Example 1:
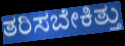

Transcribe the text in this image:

ತರಿಸಬೇಕಿತ್ತು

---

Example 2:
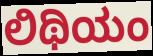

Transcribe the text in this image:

ಲಿಥಿಯಂ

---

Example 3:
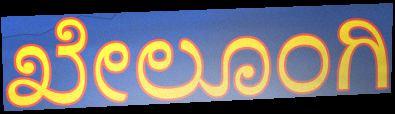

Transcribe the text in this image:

ಖೇಲೂಂಗಿ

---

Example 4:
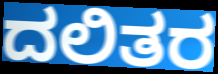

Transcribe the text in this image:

ದಲಿತರ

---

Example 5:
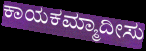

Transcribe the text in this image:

ಕಾಯಕಮ್ಮಾದೀಸು